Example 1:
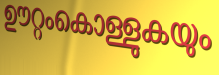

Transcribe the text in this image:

ഊറ്റംകൊള്ളുകയും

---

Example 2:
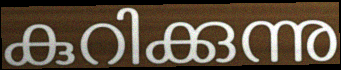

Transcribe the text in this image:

കുറിക്കുന്നു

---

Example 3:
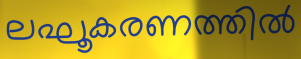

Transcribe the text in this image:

ലഘൂകരണത്തിൽ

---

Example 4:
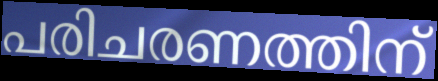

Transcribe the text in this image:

പരിചരണത്തിന്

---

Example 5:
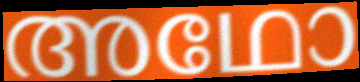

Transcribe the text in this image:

അഥോ